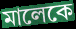
মালেকে